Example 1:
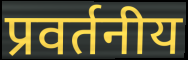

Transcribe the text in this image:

प्रवर्तनीय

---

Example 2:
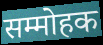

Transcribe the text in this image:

सम्मोहक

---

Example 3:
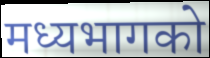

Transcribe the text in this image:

मध्यभागको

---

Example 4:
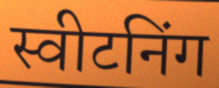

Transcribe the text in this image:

स्वीटनिंग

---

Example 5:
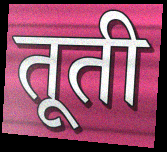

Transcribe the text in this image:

तूती